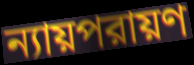
ন্যায়পরায়ণ